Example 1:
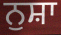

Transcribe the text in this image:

ਨੁਸ਼ਾ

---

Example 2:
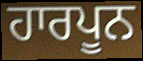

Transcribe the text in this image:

ਹਾਰਪੂਨ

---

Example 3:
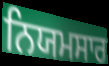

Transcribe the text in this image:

ਨਿਯਮਸਾਰ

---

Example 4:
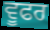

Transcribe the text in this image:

ਵੂਫਰ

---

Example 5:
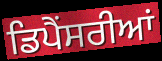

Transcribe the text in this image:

ਡਿਪੈਂਸਰੀਆਂ